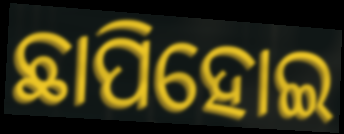
ଛାପିହୋଇ